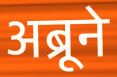
अब्रूने